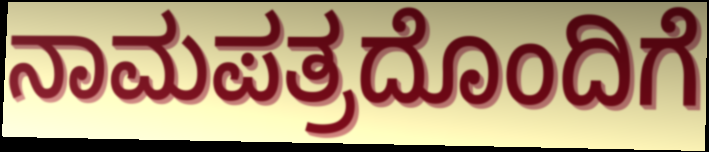
ನಾಮಪತ್ರದೊಂದಿಗೆ